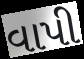
વાપી